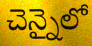
చెన్నైలో